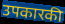
उपकारकी